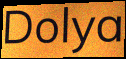
Dolya